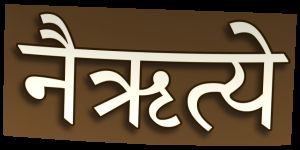
नैऋत्ये